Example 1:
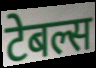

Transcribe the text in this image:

टेबल्स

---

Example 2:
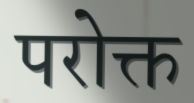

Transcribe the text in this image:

परोक्त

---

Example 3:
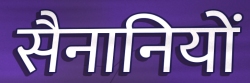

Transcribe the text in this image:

सैनानियों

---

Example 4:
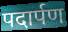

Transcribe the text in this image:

पदार्पण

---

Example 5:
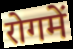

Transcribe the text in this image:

रोगमें